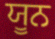
ਯੂਨ